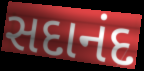
સદાનંદ